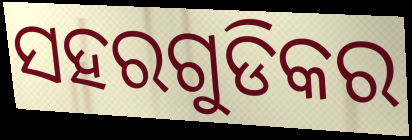
ସହରଗୁଡିକର